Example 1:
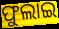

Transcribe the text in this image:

ଫୁଲାଇ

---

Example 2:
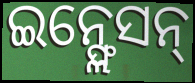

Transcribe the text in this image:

ଇନ୍ଫ୍ଲେସନ୍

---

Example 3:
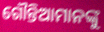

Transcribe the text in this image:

ଗୌନ୍ତିଆମାନଙ୍କୁ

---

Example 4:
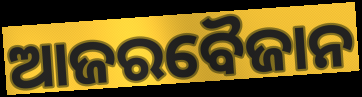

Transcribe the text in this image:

ଆଜରବୈଜାନ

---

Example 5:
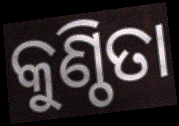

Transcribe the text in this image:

କୁଣ୍ଠିତା